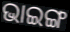
ଭାଇଙ୍ଗ